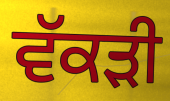
ਵੱਕੜੀ